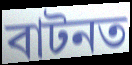
বাটনত